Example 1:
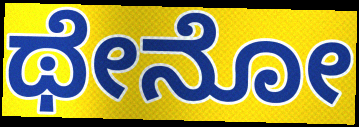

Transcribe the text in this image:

ಥೇನೋ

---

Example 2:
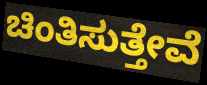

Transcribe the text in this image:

ಚಿಂತಿಸುತ್ತೇವೆ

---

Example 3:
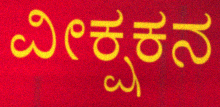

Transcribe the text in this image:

ವೀಕ್ಷಕನ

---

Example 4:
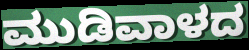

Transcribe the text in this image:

ಮುಡಿವಾಳದ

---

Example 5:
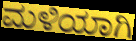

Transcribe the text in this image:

ಮಳಿಯಾಗಿ